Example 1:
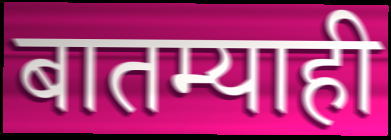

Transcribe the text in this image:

बातम्याही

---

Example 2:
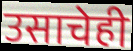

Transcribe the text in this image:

उसाचेही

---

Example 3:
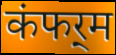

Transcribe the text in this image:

कंफर्म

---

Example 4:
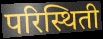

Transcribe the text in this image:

परिस्थिती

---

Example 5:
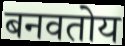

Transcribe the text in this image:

बनवतोय